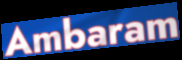
Ambaram